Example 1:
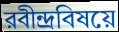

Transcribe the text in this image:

রবীন্দ্রবিষয়ে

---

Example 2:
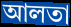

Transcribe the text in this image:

আলতা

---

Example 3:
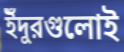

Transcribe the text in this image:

ইঁদুরগুলোই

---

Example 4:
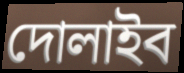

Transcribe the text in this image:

দোলাইব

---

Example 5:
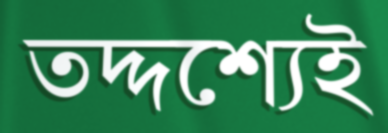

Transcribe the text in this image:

তদ্দশ্যেই